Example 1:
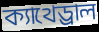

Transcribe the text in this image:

ক্যাথেড্রাল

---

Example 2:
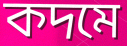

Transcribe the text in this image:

কদমে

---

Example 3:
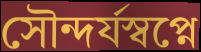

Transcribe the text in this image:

সৌন্দর্যস্বপ্নে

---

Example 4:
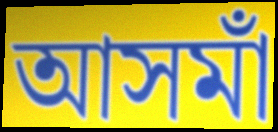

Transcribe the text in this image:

আসমাঁ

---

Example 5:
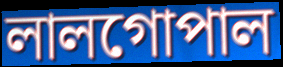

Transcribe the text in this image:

লালগোপাল